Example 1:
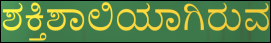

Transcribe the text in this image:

ಶಕ್ತಿಶಾಲಿಯಾಗಿರುವ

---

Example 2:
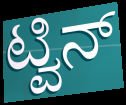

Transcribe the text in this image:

ಟ್ವಿನ್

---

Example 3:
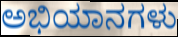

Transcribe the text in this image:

ಅಭಿಯಾನಗಳು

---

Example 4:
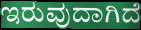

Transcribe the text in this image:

ಇರುವುದಾಗಿದೆ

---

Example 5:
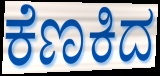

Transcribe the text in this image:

ಕೆಣಕಿದ